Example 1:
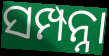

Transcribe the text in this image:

ସମ୍ପନ୍ନା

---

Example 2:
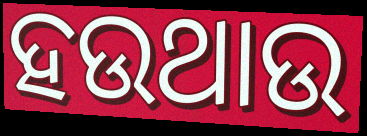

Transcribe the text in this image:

ହଉଥାଉ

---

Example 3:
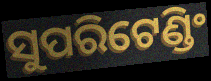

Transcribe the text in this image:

ସୁପରିଟେଣ୍ଡିଂ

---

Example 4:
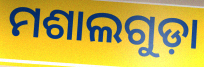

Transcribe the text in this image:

ମଶାଲଗୁଡ଼ା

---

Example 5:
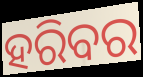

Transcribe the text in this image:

ହରିବର